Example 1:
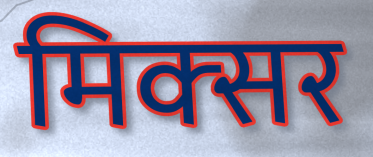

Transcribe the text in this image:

मिक्‍सर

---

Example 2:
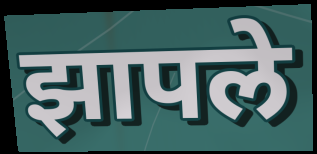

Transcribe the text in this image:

झापले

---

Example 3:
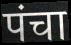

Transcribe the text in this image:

पंचा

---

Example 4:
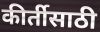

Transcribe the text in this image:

कीर्तीसाठी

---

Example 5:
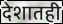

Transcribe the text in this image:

देशातही